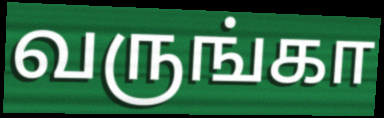
வருங்கா